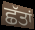
ਛੱਤਾਂ